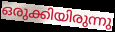
ഒരുക്കിയിരുന്നു